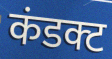
कंडक्‍ट